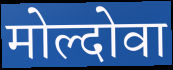
मोल्दोवा